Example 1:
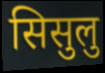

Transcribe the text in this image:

सिसुलु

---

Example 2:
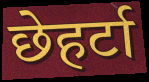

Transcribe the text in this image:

छेहर्टा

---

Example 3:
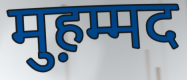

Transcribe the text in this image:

मुह़म्मद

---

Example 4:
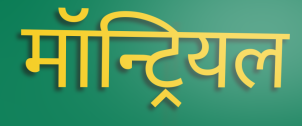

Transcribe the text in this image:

मॉन्ट्रियल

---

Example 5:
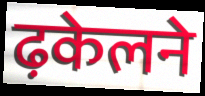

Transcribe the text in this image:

ढ़केलने